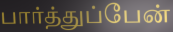
பார்த்துப்பேன்